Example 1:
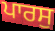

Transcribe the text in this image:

ਪਾਰਸੁ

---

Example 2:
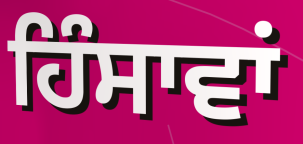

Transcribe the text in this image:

ਹਿੰਸਾਵਾਂ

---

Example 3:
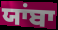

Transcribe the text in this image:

ਯਾਂਬਾ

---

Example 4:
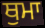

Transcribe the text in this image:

ਥੁਮਾ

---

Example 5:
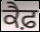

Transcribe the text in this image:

ਕੈਫ਼